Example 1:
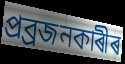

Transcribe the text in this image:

প্ৰব্ৰজনকাৰীৰ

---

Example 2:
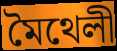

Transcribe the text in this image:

মৈথেলী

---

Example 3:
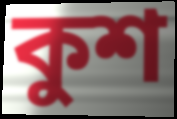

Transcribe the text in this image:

কুশ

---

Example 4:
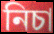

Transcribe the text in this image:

নিচা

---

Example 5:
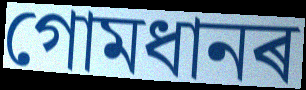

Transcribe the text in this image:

গোমধানৰ